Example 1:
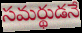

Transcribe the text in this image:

సమర్థుడనే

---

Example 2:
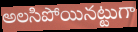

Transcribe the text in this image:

అలసిపోయినట్టుగా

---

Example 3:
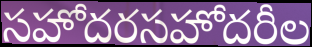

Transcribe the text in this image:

సహోదరసహోదరీల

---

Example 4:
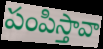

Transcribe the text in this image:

పంపిస్తావా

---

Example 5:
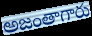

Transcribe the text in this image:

అజంతాగారు